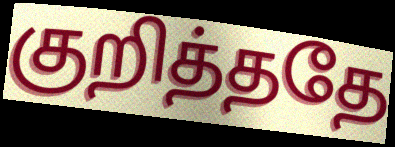
குறித்ததே